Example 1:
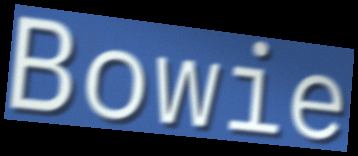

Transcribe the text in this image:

Bowie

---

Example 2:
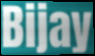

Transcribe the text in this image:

Bijay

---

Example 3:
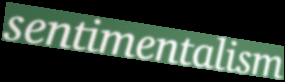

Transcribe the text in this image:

sentimentalism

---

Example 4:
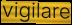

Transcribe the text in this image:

vigilare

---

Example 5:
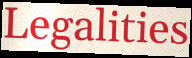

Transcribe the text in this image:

Legalities